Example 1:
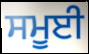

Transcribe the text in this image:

ਸਮੂਈ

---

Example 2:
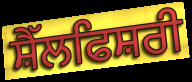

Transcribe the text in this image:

ਸ਼ੈੱਲਫਿਸ਼ਰੀ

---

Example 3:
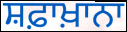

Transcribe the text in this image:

ਸ਼ਫ਼ਾਖ਼ਾਨਾ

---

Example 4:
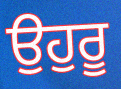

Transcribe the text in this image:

ਉਹੁਰੂ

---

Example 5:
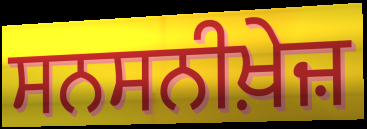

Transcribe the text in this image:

ਸਨਸਨੀਖ਼ੇਜ਼